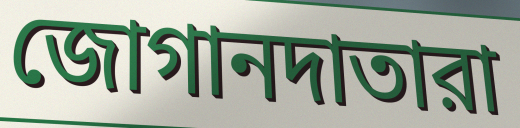
জোগানদাতারা